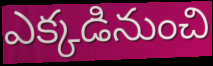
ఎక్కడినుంచి